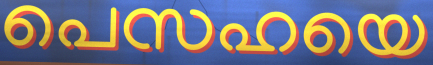
പെസഹയെ